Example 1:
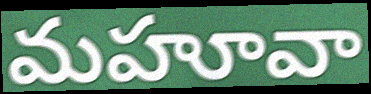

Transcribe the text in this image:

మహూవా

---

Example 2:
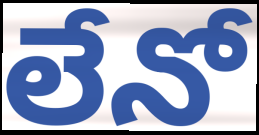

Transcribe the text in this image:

లేనో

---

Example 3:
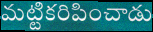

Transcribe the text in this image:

మట్టికరిపించాడు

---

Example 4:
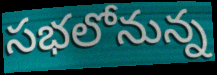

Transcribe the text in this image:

సభలోనున్న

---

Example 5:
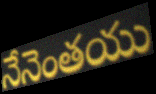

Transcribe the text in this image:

నేనెంతయు